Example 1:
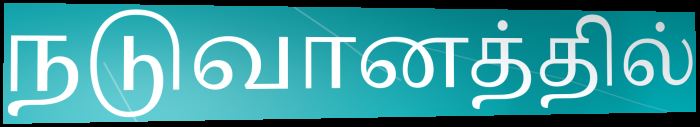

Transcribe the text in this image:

நடுவானத்தில்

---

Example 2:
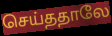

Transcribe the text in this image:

செய்ததாலே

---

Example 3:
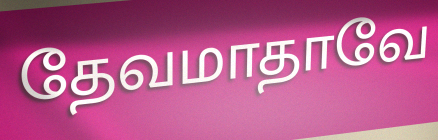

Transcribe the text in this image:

தேவமாதாவே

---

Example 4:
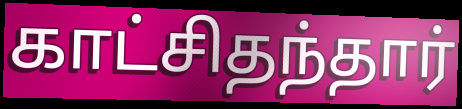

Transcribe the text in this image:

காட்சிதந்தார்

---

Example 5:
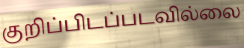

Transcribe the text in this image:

குறிப்பிடப்படவில்லை